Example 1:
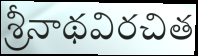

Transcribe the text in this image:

శ్రీనాథవిరచిత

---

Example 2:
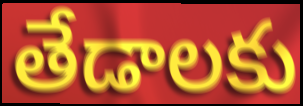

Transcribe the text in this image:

తేడాలకు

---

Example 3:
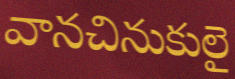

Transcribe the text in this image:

వానచినుకులై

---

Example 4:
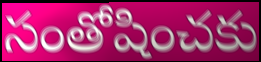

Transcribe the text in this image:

సంతోషించకు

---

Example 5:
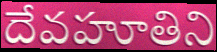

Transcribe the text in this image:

దేవహూతిని